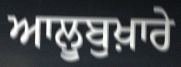
ਆਲੂਬੁਖ਼ਾਰੇ